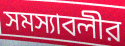
সমস্যাবলীর